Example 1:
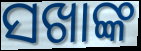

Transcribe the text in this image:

ସଖାଙ୍କ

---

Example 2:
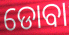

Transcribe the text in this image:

ଡୋବା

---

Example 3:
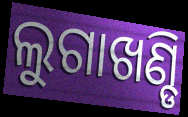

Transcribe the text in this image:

ଲୁଗାଖଣ୍ଡି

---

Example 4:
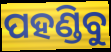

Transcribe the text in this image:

ପହଣ୍ଡିବୁ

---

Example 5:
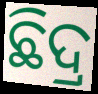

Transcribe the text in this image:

ଛିଦ୍ର